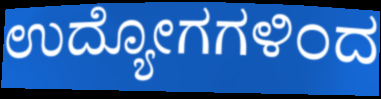
ಉದ್ಯೋಗಗಳಿಂದ